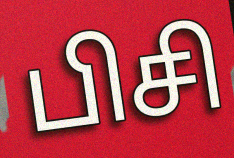
பிசி